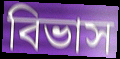
বিভাস